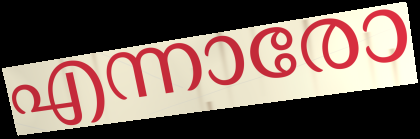
എന്നാരോ